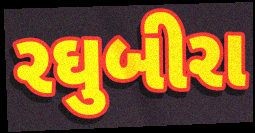
રઘુબીરા